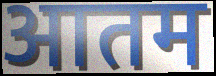
आतम